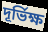
দূর্ভিক্ষ